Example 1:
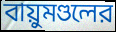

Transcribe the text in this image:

বায়ুমণ্ডলের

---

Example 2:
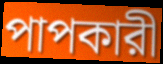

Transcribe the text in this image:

পাপকারী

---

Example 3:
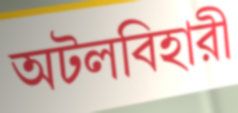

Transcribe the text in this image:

অটলবিহারী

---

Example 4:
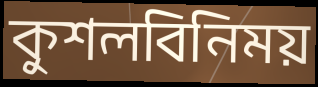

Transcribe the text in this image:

কুশলবিনিময়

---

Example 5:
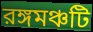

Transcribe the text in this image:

রঙ্গমঞ্চটি